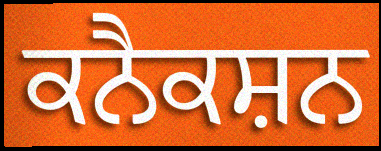
ਕਨੈਕਸ਼ਨ